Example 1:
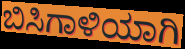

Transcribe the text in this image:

ಬಿಸಿಗಾಳಿಯಾಗಿ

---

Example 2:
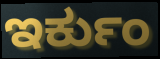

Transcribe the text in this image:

ಇರ್ಕುಂ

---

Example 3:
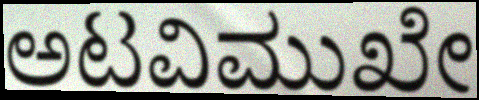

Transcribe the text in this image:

ಅಟವಿಮುಖೇ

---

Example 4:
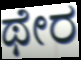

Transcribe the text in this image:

ಥೇರ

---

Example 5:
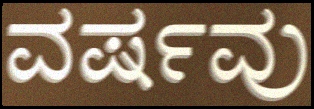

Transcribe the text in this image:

ವರ್ಷವು